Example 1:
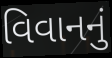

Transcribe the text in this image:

વિવાનનું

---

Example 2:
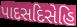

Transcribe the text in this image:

પાદસદિસેહિ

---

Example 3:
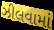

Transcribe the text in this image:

ઝીલવામાં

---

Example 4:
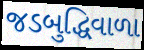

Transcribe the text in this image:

જડબુદ્ધિવાળા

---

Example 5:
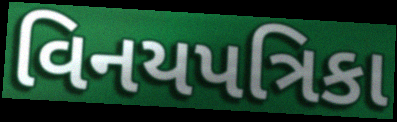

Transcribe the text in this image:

વિનયપત્રિકા